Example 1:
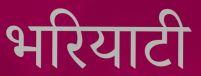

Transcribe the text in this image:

भरियाटी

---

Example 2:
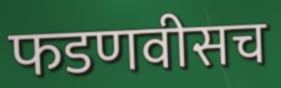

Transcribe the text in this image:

फडणवीसच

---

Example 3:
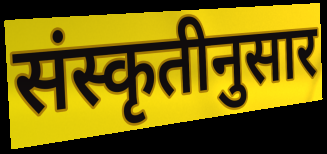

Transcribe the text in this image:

संस्कृतीनुसार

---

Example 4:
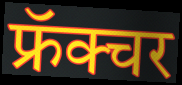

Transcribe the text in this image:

फ्रॅक्चर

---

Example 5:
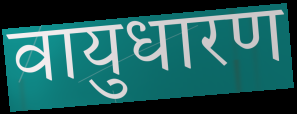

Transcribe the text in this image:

वायुधारण